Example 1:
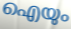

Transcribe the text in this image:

ഐയും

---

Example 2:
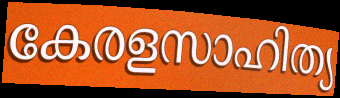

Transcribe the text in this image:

കേരളസാഹിത്യ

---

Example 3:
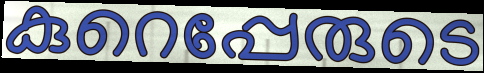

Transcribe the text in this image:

കുറെപ്പേരുടെ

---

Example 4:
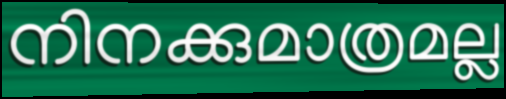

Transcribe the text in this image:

നിനക്കുമാത്രമല്ല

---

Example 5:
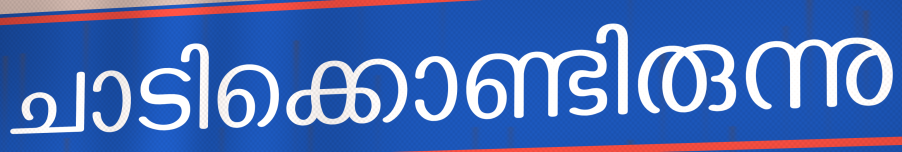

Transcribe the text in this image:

ചാടിക്കൊണ്ടിരുന്നു